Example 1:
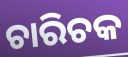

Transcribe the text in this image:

ଚାରିଚକ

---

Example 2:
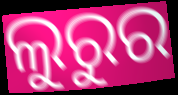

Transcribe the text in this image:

ଲୁରୁର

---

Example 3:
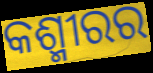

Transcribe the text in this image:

କଶ୍ମୀରର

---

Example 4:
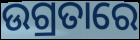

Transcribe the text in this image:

ଉଗ୍ରତାରେ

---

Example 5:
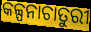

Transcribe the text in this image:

କଳ୍ପନାଚାତୁରୀ